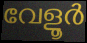
വേളൂർ